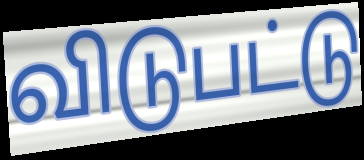
விடுபட்டு